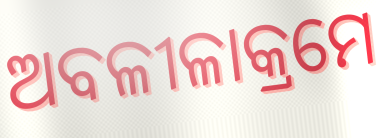
ଅବଳୀଳାକ୍ରମେ